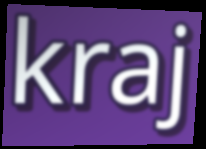
kraj